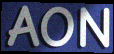
AON